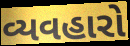
વ્યવહારો